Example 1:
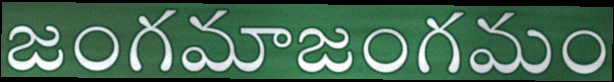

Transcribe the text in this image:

జంగమాజంగమం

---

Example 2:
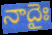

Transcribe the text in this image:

నాదైః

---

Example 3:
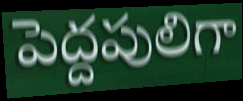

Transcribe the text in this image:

పెద్దపులిగా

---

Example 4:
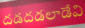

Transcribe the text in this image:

దడదడలాడేవి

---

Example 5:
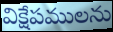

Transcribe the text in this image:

విక్షేపములను